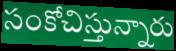
సంకోచిస్తున్నారు